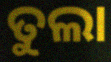
ତୁଲା